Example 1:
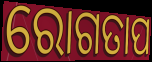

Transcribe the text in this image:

ରୋଗତାପ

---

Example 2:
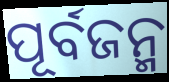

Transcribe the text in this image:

ପୂର୍ବଜନ୍ମ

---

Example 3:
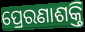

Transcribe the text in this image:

ପ୍ରେରଣାଶକ୍ତି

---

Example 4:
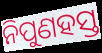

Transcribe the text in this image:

ନିପୁଣହସ୍ତ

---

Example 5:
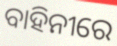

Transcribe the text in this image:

ବାହିନୀରେ